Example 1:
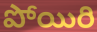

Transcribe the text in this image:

పోయిరి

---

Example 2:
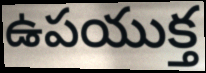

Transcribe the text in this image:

ఉపయుక్త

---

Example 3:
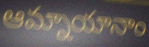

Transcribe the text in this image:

ఆమ్నాయానాం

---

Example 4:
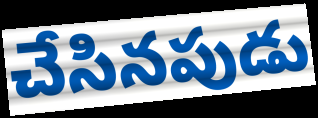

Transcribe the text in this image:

చేసినపుడు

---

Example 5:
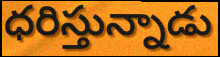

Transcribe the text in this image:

ధరిస్తున్నాడు